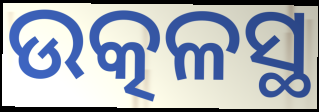
ଉତ୍କଳସ୍ଥ